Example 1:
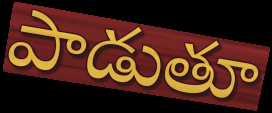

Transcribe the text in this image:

పాడుతూ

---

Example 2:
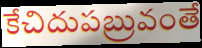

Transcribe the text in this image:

కేచిదుపబ్రువంతే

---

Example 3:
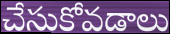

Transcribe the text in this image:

చేసుకోవడాలు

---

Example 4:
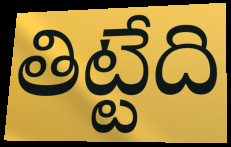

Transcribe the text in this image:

తిట్టేది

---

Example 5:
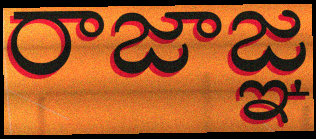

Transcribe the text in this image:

రాజాజ్ఞ